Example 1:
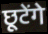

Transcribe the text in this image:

छूटेंगे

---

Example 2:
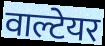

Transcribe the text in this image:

वाल्टेयर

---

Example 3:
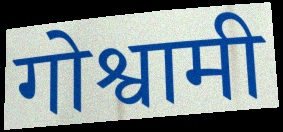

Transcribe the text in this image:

गोश्वामी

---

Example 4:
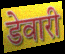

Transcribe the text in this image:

डेवारी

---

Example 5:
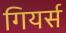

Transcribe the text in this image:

गियर्स